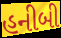
હનીબી